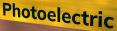
Photoelectric